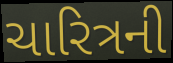
ચારિત્રની